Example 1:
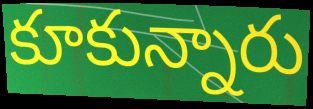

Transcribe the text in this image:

కూకున్నారు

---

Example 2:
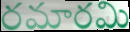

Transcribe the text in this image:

రమారమి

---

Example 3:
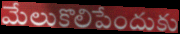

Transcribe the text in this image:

మేలుకొలిపేందుకు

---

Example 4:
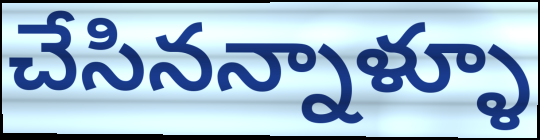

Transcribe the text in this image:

చేసినన్నాళ్ళూ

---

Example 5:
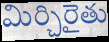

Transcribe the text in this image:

మిర్చిరైతు